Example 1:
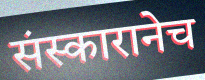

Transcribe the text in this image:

संस्कारानेच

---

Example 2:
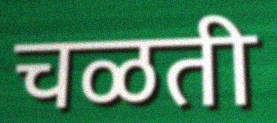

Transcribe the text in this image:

चळती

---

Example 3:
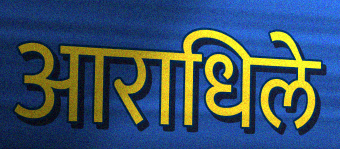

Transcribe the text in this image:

आराधिले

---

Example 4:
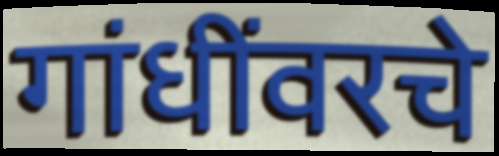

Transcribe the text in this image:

गांधींवरचे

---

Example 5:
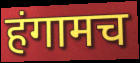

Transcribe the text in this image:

हंगामच